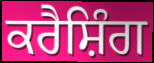
ਕਰੈਸ਼ਿੰਗ